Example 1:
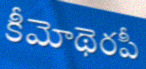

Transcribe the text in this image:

కీమోథెరపీ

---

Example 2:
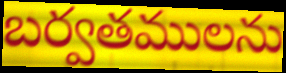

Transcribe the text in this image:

బర్వతములను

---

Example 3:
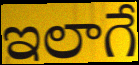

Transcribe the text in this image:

ఇలాగే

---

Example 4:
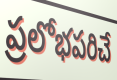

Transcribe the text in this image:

ప్రలోభపరిచే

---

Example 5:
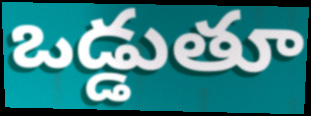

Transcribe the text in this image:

ఒడ్డుతూ